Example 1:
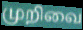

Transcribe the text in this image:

முறிவை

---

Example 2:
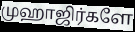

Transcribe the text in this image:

முஹாஜிர்களே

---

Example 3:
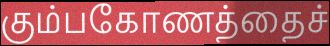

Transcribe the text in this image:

கும்பகோணத்தைச்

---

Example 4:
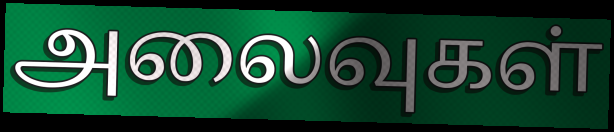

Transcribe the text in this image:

அலைவுகள்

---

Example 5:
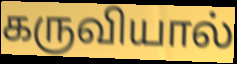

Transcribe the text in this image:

கருவியால்